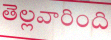
తెల్లవారింది